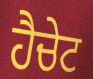
ਹੈਚੇਟ